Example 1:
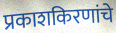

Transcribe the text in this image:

प्रकाशकिरणांचे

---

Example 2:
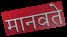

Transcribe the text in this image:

मानवते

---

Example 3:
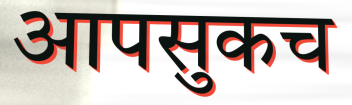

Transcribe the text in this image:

आपसुकच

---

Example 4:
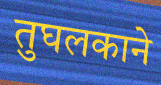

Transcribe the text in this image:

तुघलकाने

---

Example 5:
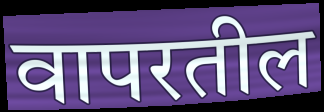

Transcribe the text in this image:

वापरतील